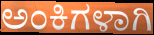
ಅಂಕಿಗಳಾಗಿ